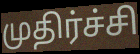
முதிர்ச்சி